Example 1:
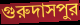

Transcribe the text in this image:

গুরুদাসপুর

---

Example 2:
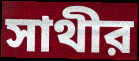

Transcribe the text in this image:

সাথীর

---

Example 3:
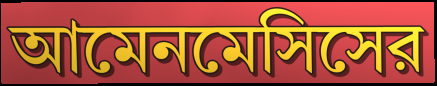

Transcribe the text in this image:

আমেনমেসিসের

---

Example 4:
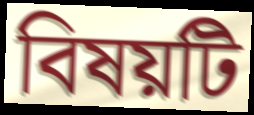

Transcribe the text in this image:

বিষয়টি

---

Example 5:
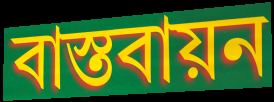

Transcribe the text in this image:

বাস্তবায়ন